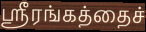
ஸ்ரீரங்கத்தைச்